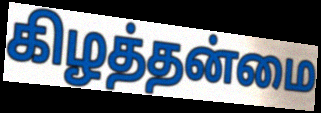
கிழத்தன்மை